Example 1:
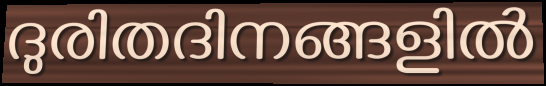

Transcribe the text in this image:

ദുരിതദിനങ്ങളിൽ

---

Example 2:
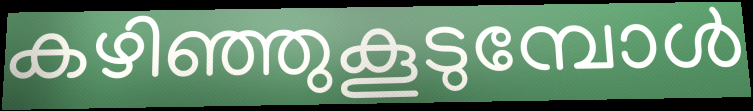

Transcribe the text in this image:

കഴിഞ്ഞുകൂടുമ്പോൾ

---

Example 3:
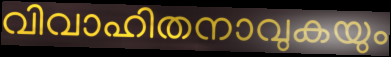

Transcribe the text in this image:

വിവാഹിതനാവുകയും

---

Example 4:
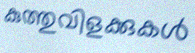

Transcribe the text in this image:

കുത്തുവിളക്കുകൾ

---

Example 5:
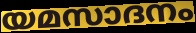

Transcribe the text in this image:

യമസാദനം